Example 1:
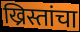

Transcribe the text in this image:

ख्रिस्तांचा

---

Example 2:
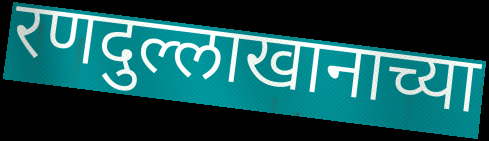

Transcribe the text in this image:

रणदुल्लाखानाच्या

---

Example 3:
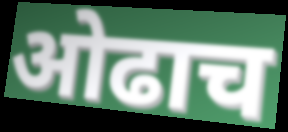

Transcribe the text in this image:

ओढाच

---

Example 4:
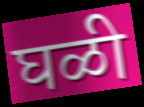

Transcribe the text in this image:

घळी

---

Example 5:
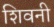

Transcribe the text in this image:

शिवनी